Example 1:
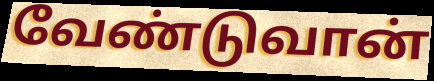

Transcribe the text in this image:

வேண்டுவான்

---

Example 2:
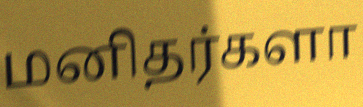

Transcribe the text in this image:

மனிதர்களா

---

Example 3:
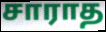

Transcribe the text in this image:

சாராத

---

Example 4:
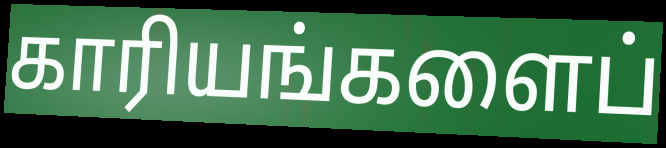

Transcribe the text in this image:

காரியங்களைப்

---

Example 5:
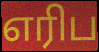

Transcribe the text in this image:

எரிப